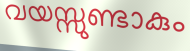
വയസ്സുണ്ടാകും